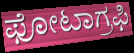
ಫೋಟಾಗ್ರಫಿ